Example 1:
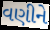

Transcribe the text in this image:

વણીને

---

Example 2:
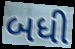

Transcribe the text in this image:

બધી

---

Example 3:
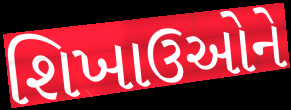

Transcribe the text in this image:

શિખાઉઓને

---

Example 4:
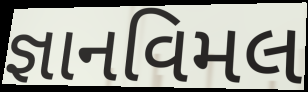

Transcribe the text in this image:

જ્ઞાનવિમલ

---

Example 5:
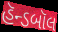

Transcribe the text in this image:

હૅન્ડબૉલ